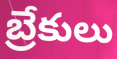
బ్రేకులు